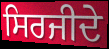
ਸਿਰਜੀਦੇ